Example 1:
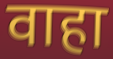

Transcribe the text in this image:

वाहा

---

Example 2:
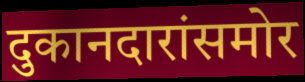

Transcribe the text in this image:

दुकानदारांसमोर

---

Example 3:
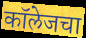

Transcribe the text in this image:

कॉलेजचा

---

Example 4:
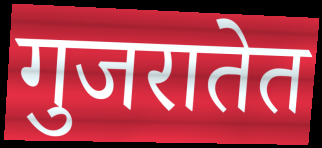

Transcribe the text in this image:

गुजरातेत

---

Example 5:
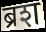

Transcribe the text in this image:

ब्रश